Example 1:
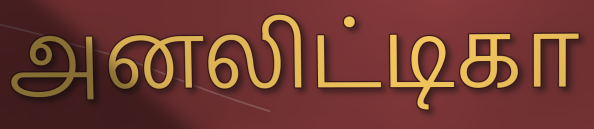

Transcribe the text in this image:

அனலிட்டிகா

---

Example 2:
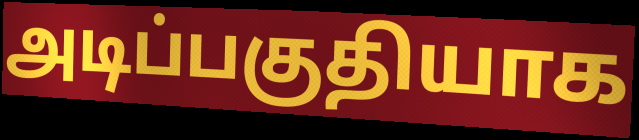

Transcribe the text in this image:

அடிப்பகுதியாக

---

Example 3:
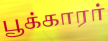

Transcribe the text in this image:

பூக்காரர்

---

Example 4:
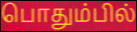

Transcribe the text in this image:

பொதும்பில்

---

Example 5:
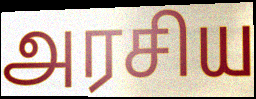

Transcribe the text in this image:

அரசிய